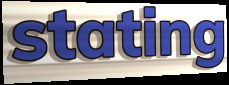
stating